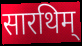
सारथिम्